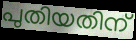
പുതിയതിന്